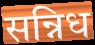
सन्निध